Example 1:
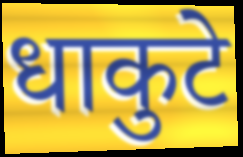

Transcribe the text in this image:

धाकुटे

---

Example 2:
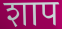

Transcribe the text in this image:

शाप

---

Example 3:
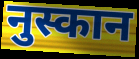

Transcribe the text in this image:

नुस्कान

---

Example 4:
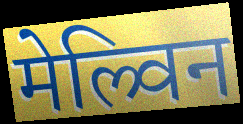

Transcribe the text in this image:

मेल्विन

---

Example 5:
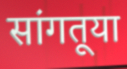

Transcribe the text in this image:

सांगतूया